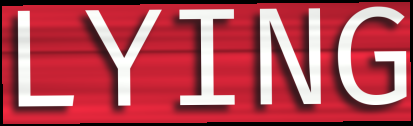
LYING